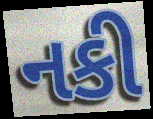
નકી